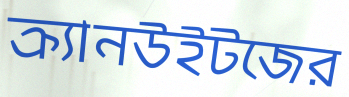
ক্র্যানউইটজের